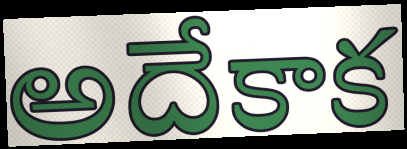
అదేకాక